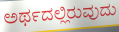
ಅರ್ಥದಲ್ಲಿರುವುದು